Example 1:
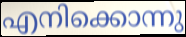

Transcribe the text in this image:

എനിക്കൊന്നു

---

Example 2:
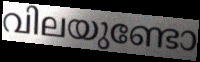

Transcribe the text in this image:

വിലയുണ്ടോ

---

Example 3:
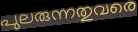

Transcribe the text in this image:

പുലരുന്നതുവരെ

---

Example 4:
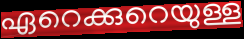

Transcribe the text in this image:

ഏറെക്കുറെയുള്ള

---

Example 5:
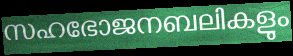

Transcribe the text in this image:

സഹഭോജനബലികളും